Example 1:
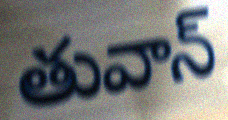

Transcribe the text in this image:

తువాన్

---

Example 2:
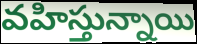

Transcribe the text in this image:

వహిస్తున్నాయి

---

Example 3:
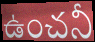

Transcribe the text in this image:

ఉంచనీ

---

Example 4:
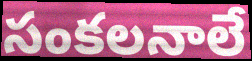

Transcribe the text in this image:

సంకలనాలే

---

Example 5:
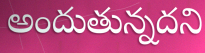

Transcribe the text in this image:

అందుతున్నదని